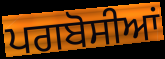
ਪਗਬੋਸੀਆਂ